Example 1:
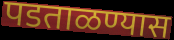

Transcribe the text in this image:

पडताळण्यास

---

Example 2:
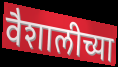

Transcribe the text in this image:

वैशालीच्या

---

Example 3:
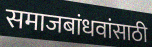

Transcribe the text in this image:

समाजबांधवांसाठी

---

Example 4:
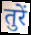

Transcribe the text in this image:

तुरें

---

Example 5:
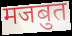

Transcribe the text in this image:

मजबुत